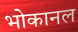
भोकानल